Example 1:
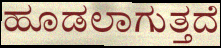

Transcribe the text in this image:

ಹೂಡಲಾಗುತ್ತದೆ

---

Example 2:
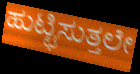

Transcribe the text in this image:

ಹುಟ್ಟಿಸುತ್ತಲೇ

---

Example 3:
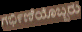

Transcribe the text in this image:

ಗರ್ಭಿಣಿಯೊಬ್ಬರು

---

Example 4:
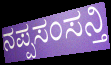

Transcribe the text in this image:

ನಪ್ಪಸಂಸನ್ತಿ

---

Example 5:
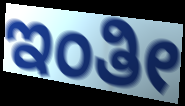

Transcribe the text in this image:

ಇಂತೀ